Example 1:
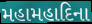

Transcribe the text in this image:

મહામહાદિના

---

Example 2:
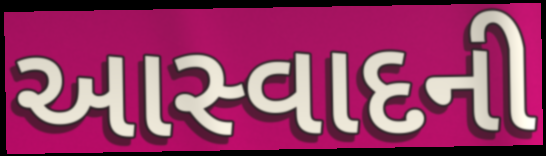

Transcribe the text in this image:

આસ્વાદની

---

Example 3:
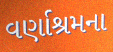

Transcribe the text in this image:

વર્ણાશ્રમના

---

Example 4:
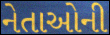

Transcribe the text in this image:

નેતાઓની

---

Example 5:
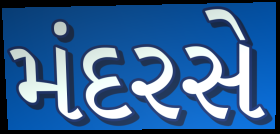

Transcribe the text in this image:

મંદરસે